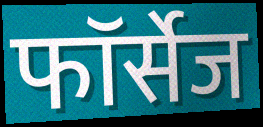
फॉर्सेज